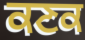
ਕਣਕ